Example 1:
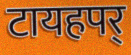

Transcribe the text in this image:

टायहपर्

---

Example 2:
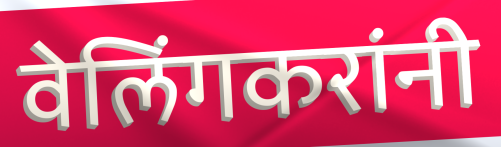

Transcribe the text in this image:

वेलिंगकरांनी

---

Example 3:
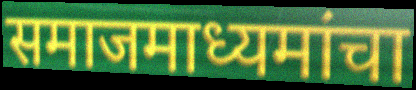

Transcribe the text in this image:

समाजमाध्यमांचा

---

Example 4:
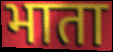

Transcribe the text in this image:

भाता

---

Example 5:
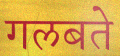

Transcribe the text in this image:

गलबते